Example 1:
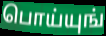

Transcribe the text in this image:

பொய்யுங்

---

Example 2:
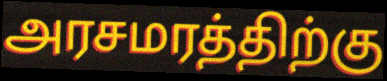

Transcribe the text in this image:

அரசமரத்திற்கு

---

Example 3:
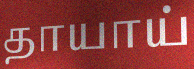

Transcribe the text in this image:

தாயாய்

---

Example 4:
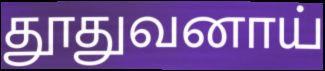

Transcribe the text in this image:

தூதுவனாய்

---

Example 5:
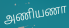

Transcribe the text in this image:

அணியணா